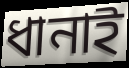
ধানাই